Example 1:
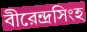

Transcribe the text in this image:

বীরেন্দ্রসিংহ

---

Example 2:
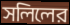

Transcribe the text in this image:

সলিলের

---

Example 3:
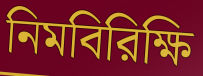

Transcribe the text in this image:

নিমবিরিক্ষি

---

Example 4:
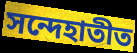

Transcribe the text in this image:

সন্দেহাতীত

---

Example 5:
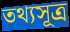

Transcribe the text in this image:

তথ্যসূত্র